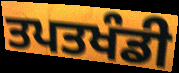
ਤਪਤਖੰਡੀ